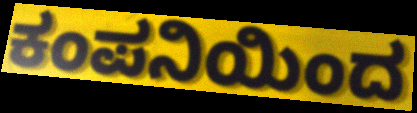
ಕಂಪನಿಯಿಂದ